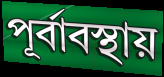
পূর্বাবস্থায়